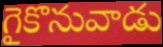
గైకొనువాడు